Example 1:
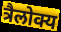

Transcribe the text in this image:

त्रैलोक्य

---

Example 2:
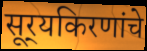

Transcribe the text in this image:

सूर्यकिरणांचे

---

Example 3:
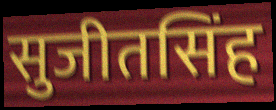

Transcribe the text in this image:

सुजीतसिंह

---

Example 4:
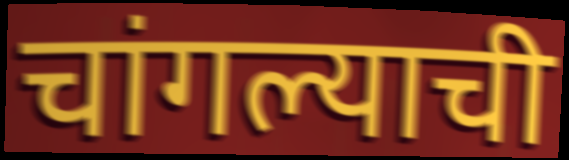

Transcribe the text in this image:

चांगल्याची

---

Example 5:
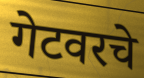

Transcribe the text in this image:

गेटवरचे